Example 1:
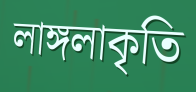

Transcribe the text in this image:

লাঙ্গলাকৃতি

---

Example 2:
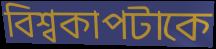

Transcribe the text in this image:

বিশ্বকাপটাকে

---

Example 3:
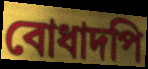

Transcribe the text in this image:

বোধাদপি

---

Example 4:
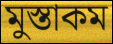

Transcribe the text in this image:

মুস্তাকম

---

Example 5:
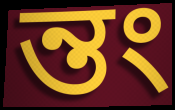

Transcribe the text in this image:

ন্তং